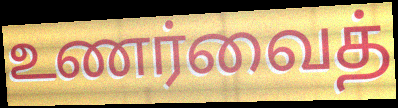
உணர்வைத்